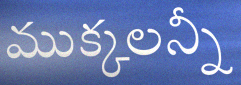
ముక్కలన్నీ